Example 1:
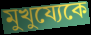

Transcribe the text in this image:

মুখুয্যেকে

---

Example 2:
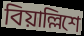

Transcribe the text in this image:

বিয়াল্লিশে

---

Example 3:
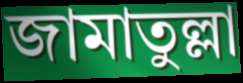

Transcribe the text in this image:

জামাতুল্লা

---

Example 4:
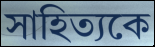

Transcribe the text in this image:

সাহিত্যকে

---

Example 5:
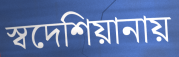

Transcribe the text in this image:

স্বদেশিয়ানায়